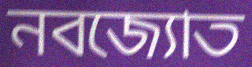
নবজ্যোত